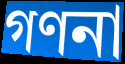
গণনা